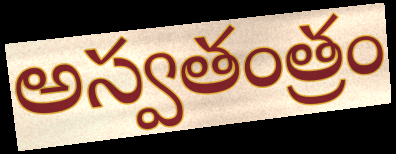
అస్వతంత్రం